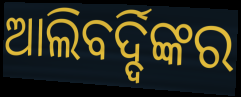
ଆଲିବର୍ଦ୍ଦିଙ୍କର